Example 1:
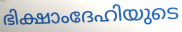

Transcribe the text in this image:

ഭിക്ഷാംദേഹിയുടെ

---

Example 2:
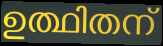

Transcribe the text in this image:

ഉത്ഥിതന്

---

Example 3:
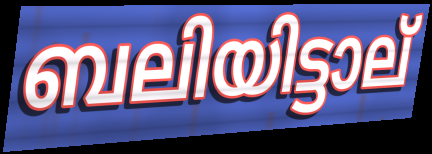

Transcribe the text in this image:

ബലിയിട്ടാല്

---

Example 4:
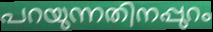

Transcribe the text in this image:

പറയുന്നതിനപ്പുറം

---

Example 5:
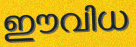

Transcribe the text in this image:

ഈവിധ